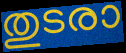
തുടരാ